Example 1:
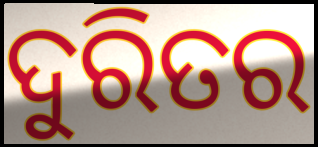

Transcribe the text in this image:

ଦୁରିତର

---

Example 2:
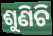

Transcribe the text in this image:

ଶୁଣିଚି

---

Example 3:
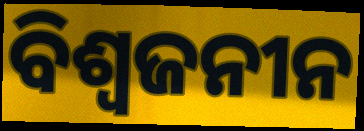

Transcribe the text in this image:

ବିଶ୍ୱଜନୀନ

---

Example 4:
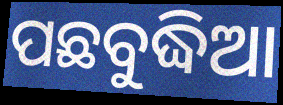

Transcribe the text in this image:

ପଛବୁଦ୍ଧିଆ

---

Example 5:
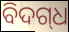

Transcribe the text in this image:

ବିଦଗ୍‌ଧ